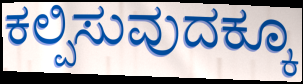
ಕಲ್ಪಿಸುವುದಕ್ಕೂ